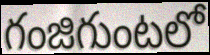
గంజిగుంటలో